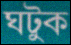
ঘটুক